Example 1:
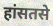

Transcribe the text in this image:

हांसतसे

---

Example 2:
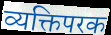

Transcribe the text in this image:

व्यक्तिपरक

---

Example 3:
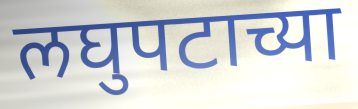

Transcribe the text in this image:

लघुपटाच्या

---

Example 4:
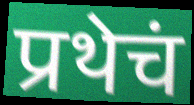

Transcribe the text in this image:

प्रथेचं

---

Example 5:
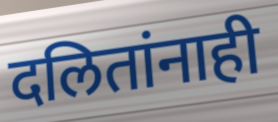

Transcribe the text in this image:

दलितांनाही